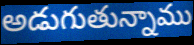
అడుగుతున్నాము